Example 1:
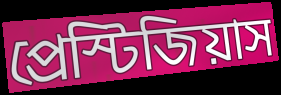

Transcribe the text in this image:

প্রেস্টিজিয়াস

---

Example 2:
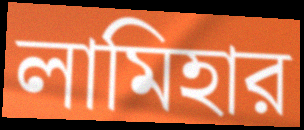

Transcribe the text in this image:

লামিহার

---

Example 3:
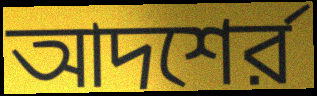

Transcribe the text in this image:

আদশের্র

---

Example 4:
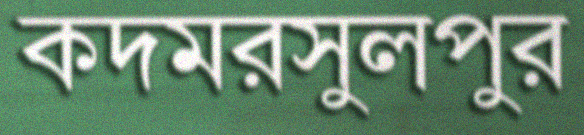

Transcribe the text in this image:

কদমরসুলপুর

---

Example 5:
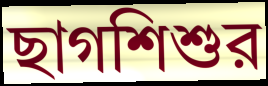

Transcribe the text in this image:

ছাগশিশুর